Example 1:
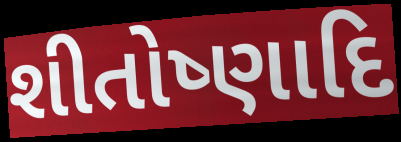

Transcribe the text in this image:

શીતોષ્ણાદિ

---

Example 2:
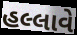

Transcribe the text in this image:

હલ્લાવે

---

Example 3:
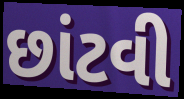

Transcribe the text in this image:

છાંટવી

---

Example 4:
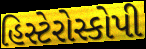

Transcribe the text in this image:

હિસ્ટેરોસ્કોપી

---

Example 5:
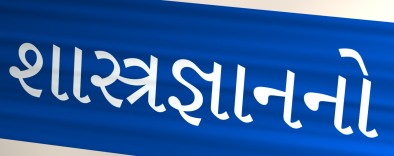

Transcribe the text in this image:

શાસ્ત્રજ્ઞાનનો